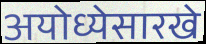
अयोध्येसारखे